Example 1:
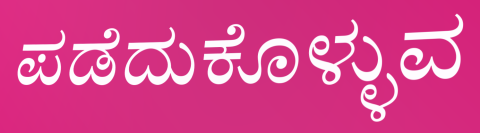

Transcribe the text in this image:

ಪಡೆದುಕೊಳ್ಳುವ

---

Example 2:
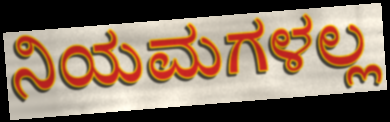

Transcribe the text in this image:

ನಿಯಮಗಳಲ್ಲ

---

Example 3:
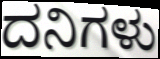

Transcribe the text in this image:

ದನಿಗಳು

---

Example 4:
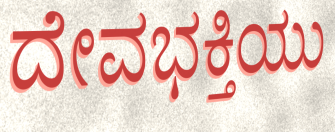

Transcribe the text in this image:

ದೇವಭಕ್ತಿಯು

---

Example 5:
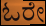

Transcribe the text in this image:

ಓರೇ